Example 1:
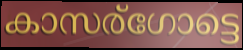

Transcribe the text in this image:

കാസര്ഗോട്ടെ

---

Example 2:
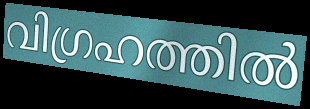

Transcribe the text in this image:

വിഗ്രഹത്തിൽ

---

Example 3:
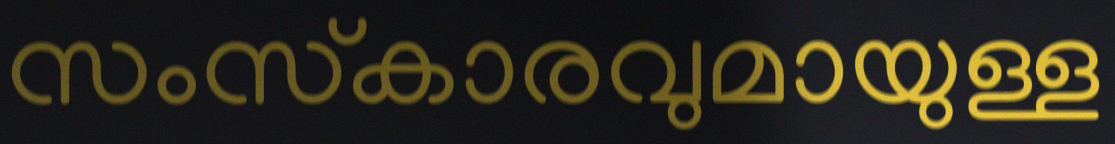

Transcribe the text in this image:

സംസ്‌കാരവുമായുള്ള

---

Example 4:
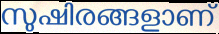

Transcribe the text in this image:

സുഷിരങ്ങളാണ്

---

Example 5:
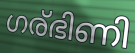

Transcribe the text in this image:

ഗര്ഭിണി